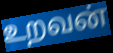
உறவன்